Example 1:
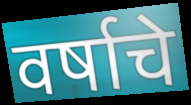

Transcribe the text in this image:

वर्षाचे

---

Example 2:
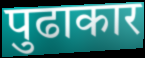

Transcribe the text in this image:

पुढाकार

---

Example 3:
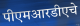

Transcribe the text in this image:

पीएमआरडीएचे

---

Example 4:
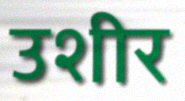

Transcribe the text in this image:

उशीर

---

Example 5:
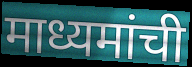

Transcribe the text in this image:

माध्यमांची